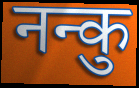
नन्कु